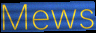
Mews